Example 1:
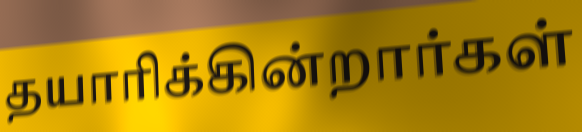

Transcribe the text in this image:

தயாரிக்கின்றார்கள்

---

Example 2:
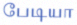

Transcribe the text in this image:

பேடியா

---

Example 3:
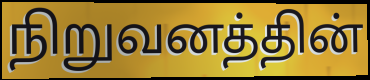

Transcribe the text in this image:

நிறுவனத்தின்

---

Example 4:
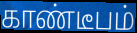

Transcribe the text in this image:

காண்டீபம்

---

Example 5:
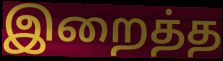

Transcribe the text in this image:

இறைத்த